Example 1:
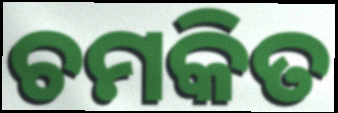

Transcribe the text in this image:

ଚମକିତ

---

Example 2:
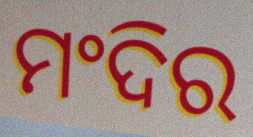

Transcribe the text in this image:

ମଂଦିର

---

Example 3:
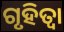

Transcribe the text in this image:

ଗୃହିତ୍ବା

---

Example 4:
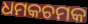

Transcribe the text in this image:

ଧମକଚମକ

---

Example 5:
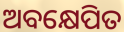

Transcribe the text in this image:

ଅବକ୍ଷେପିତ